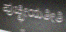
ಪುಚ್ಛೀಯತೀತಿ